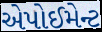
એપોઈમેન્ટ